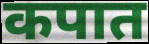
कपात